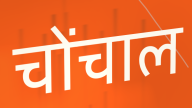
चोंचाल